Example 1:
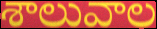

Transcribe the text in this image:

శాలువాల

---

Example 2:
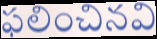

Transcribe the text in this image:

ఫలించినవి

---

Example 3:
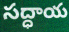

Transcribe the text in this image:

సద్ధాయ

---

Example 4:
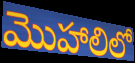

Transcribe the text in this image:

మొహాలిలో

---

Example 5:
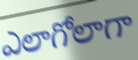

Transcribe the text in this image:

ఎలాగోలాగా